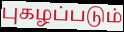
புகழப்படும்